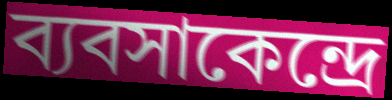
ব্যবসাকেন্দ্রে